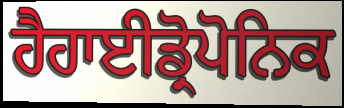
ਹੈਹਾਈਡ੍ਰੋਪੋਨਿਕ